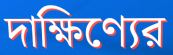
দাক্ষিণ্যের